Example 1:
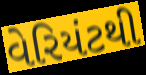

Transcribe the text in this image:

વેરિયંટથી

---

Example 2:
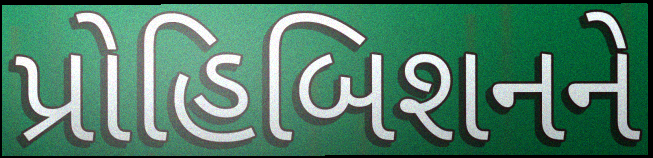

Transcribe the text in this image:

પ્રોહિબિશનને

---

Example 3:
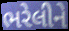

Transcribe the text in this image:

ભરેલીને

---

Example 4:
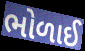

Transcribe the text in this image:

ભોળાઈ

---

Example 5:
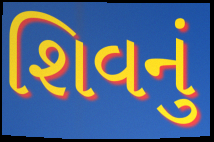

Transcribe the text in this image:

શિવનું